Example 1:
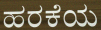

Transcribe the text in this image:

ಹರಕೆಯ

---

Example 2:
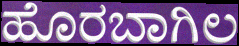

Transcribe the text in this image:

ಹೊರಬಾಗಿಲ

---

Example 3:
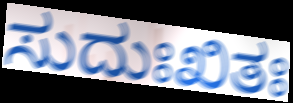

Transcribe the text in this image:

ಸುದುಃಖಿತಃ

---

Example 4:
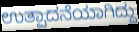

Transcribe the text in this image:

ಉತ್ಪಾದನೆಯಾಗಿದ್ದು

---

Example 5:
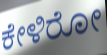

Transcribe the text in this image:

ಕೇಳಿರೋ